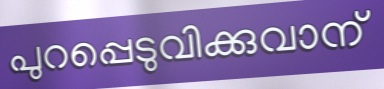
പുറപ്പെടുവിക്കുവാന്